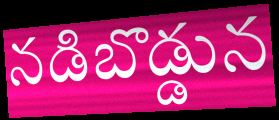
నడిబొడ్డున